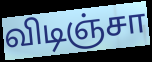
விடிஞ்சா